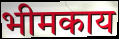
भीमकाय